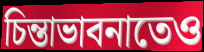
চিন্তাভাবনাতেও